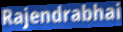
Rajendrabhai